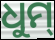
ଧୁମ୍